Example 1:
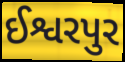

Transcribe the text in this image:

ઈશ્વરપુર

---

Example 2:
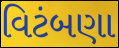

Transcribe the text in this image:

વિટંબણા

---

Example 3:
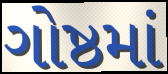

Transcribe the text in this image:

ગોષ્ઠમાં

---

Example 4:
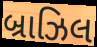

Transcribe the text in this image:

બ્રાઝિલ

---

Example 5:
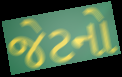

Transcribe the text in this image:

જેટનો